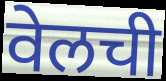
वेलची